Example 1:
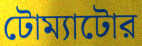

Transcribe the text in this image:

টোম্যাটোর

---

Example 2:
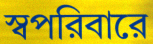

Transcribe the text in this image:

স্বপরিবারে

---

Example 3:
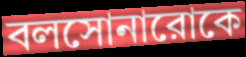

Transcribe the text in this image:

বলসোনারোকে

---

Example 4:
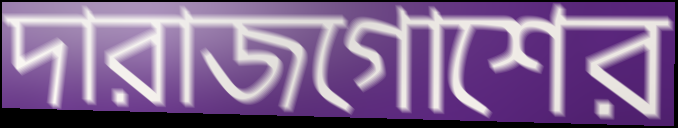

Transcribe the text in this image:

দারাজগোশের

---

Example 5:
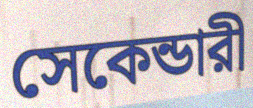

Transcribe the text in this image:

সেকেন্ডারী